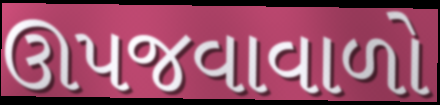
ઊપજવાવાળો